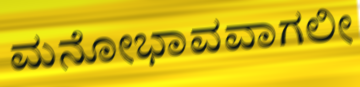
ಮನೋಭಾವವಾಗಲೀ